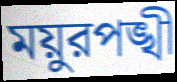
ময়ুরপঙ্খী